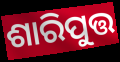
ଶାରିପୁତ୍ତ